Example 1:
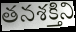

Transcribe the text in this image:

తనశక్తిని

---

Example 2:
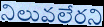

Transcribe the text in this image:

నిలువలేరని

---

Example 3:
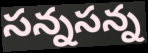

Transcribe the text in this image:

సన్నసన్న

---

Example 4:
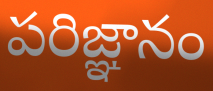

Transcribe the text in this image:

పరిజ్ఞానం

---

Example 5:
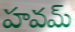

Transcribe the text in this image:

హవమ్